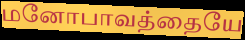
மனோபாவத்தையே